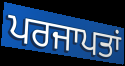
ਪਰਜਾਪਤਾਂ